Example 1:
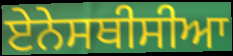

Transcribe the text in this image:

ਏਨੇਸਥੀਸੀਆ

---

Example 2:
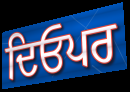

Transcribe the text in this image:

ਦਿਓਪਰ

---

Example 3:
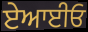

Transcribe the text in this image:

ਏਆਈਓ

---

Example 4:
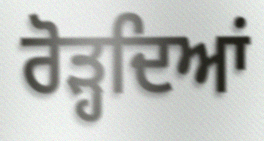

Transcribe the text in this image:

ਰੋੜ੍ਹਦਿਆਂ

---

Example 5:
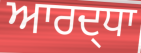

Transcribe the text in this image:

ਆਰਦ੍ਧਾ